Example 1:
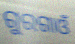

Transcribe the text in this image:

ଗୁରଗାଓଁ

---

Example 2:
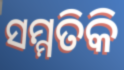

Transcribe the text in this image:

ସମ୍ମତିକି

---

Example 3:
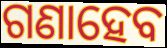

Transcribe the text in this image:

ଗଣାହେବ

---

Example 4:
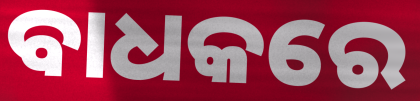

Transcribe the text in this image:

ବାଧକରେ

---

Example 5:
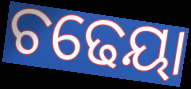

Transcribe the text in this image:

ଚଢେୟା